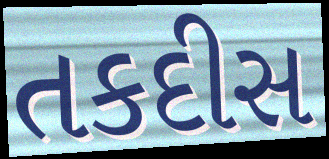
તકદીસ